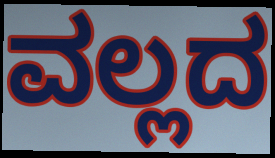
ವಲ್ಲದ